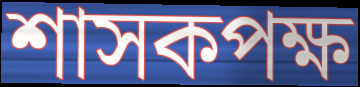
শাসকপক্ষ